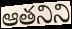
ఆతనిని